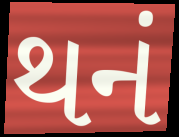
થનં